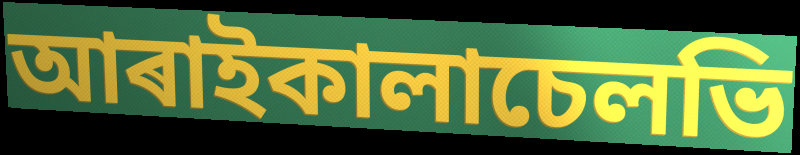
আৰাইকালাচেলভি